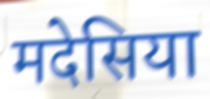
मदेसिया